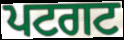
ਪਟਗਟ